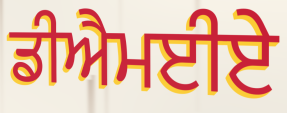
ਡੀਐਮਈਏ